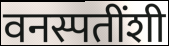
वनस्पतींशी